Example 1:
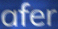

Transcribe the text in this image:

afer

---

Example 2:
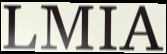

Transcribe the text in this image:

LMIA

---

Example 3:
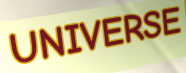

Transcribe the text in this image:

UNIVERSE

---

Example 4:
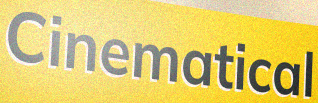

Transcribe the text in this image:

Cinematical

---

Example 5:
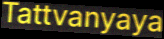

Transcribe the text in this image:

Tattvanyaya